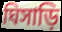
ঘিসাড়ি